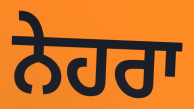
ਨੇਹਰਾ